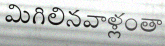
మిగిలినవాళ్లంతా